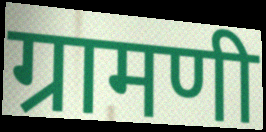
ग्रामणी